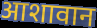
आशावान